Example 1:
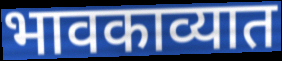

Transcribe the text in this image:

भावकाव्यात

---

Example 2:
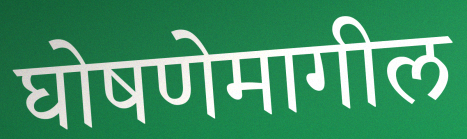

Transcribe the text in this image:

घोषणेमागील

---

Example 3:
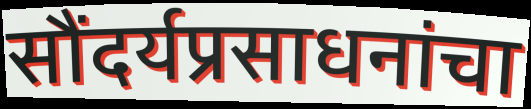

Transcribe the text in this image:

सौंदर्यप्रसाधनांचा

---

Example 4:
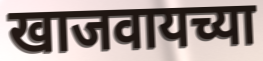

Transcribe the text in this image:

खाजवायच्या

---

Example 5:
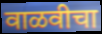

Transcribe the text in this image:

वाळवीचा